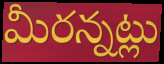
మీరన్నట్లు